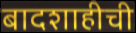
बादशाहीची